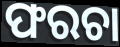
ଫରଚା